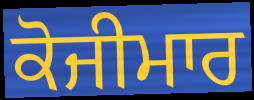
ਕੋਜੀਮਾਰ